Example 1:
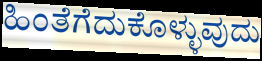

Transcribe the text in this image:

ಹಿಂತೆಗೆದುಕೊಳ್ಳುವುದು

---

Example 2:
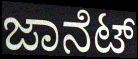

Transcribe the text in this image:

ಜಾನೆಟ್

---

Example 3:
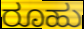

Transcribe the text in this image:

ರೂಹು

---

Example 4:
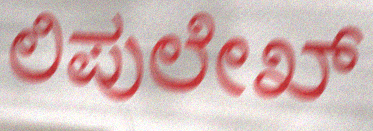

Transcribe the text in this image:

ಲಿಪುಲೇಖ್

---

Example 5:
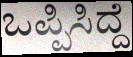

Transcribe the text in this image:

ಒಪ್ಪಿಸಿದ್ದೆ